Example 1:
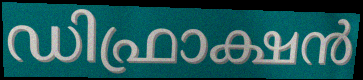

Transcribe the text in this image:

ഡിഫ്രാക്ഷൻ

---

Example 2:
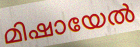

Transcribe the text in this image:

മിഷായേൽ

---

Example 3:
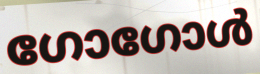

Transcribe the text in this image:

ഗോഗോൾ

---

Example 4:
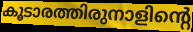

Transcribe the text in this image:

കൂടാരത്തിരുനാളിന്റെ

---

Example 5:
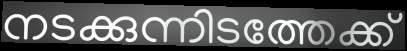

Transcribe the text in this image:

നടക്കുന്നിടത്തേക്ക്